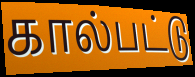
கால்பட்டு